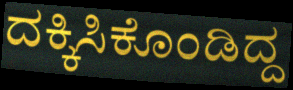
ದಕ್ಕಿಸಿಕೊಂಡಿದ್ದ